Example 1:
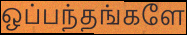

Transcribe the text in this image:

ஒப்பந்தங்களே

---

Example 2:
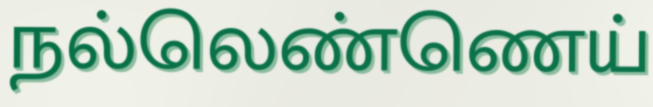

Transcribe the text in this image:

நல்லெண்ணெய்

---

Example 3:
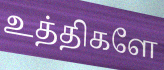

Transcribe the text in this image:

உத்திகளே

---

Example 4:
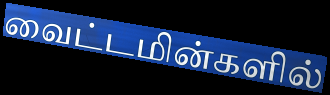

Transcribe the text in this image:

வைட்டமின்களில்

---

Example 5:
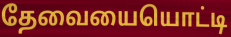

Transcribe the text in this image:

தேவையையொட்டி